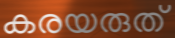
കരയരുത്